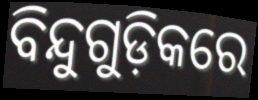
ବିନ୍ଦୁଗୁଡ଼ିକରେ